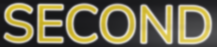
SECOND